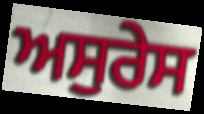
ਅਸੁਰੇਸ